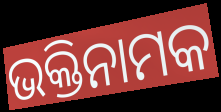
ଭକ୍ତିନାମକ